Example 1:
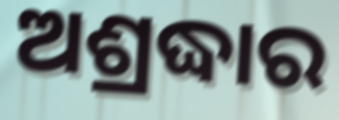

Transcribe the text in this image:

ଅଶ୍ରଦ୍ଧାର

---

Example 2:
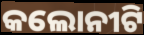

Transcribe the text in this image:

କଲୋନୀଟି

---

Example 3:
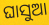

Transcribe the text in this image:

ଘାସୁଆ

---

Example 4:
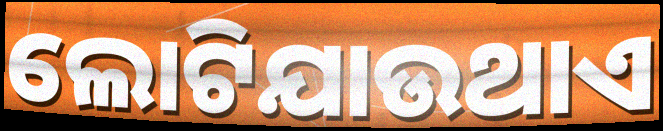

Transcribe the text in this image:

ଲୋଟିଯାଉଥାଏ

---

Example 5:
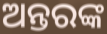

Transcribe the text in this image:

ଅନ୍ତରଙ୍କ